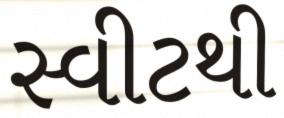
સ્વીટથી